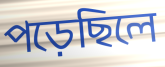
পড়েছিলে